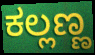
ಕಲ್ಲಣ್ಣ